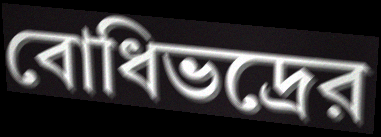
বোধিভদ্রের